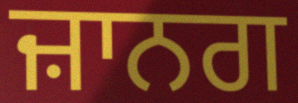
ਜ਼ਾਨਗ